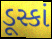
ડૂસ્કાં